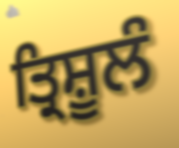
ਤ੍ਰਿਸ਼ੂਲੰ